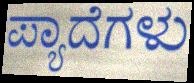
ಪ್ಯಾದೆಗಳು